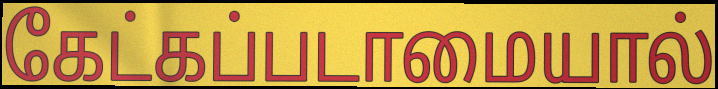
கேட்கப்படாமையால்